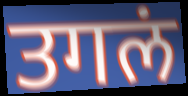
उगलं